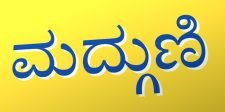
ಮದ್ಗುಣಿ